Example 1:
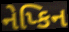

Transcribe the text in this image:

નેપ્કિન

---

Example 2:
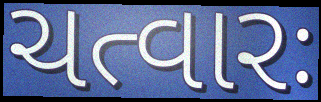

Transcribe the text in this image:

ચત્વારઃ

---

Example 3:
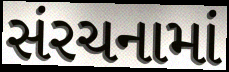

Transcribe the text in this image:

સંરચનામાં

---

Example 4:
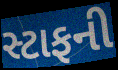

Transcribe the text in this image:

સ્ટાફની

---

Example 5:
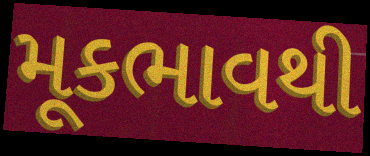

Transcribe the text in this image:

મૂકભાવથી